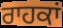
ਰਾਹਕਾਂ